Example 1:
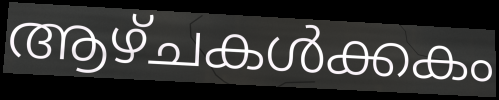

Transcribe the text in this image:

ആഴ്ചകൾക്കകം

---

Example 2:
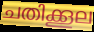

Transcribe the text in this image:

ചതിക്കൂല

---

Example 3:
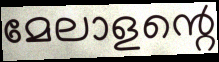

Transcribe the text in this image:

മേലാളന്റെ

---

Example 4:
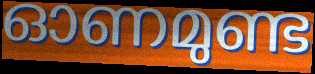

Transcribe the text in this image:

ഓണമുണ്ട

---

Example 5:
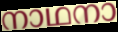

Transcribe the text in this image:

നാഥനാ